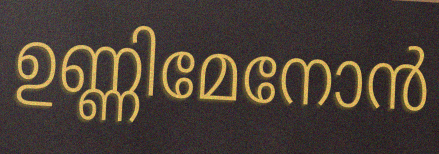
ഉണ്ണിമേനോൻ